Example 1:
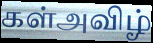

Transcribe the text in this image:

கள்அவிழ்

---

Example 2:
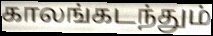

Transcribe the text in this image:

காலங்கடந்தும்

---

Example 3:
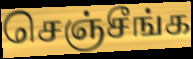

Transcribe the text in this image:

செஞ்சீங்க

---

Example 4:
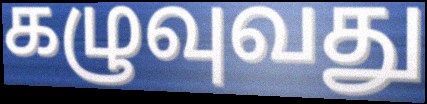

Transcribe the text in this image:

கழுவுவது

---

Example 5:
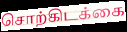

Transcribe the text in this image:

சொற்கிடக்கை